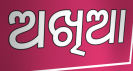
ଅଖିଆ